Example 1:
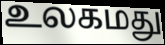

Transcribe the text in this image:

உலகமது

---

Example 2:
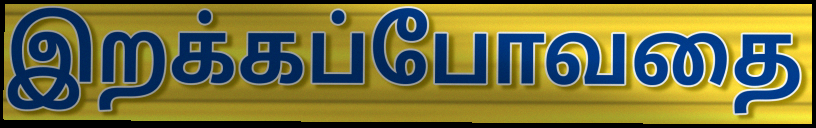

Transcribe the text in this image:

இறக்கப்போவதை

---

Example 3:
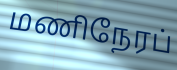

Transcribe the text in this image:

மணிநேரப்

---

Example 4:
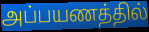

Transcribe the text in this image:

அப்பயணத்தில்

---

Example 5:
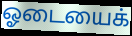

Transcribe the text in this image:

ஓடையைக்